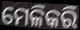
ମେଳିକରି